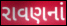
રાવણનાં